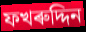
ফখৰুদ্দিন